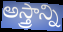
అస్త్రాన్ని